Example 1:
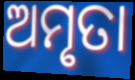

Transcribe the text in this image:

ଅମୃତା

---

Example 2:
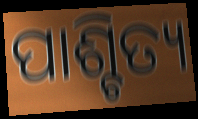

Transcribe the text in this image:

ପାଶ୍ଚିତ୍ୟ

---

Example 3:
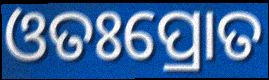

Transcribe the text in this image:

ଓତଃପ୍ରୋତ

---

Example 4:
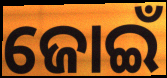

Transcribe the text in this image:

ଜୋଇଁ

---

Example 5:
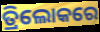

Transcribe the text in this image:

ତ୍ରିଲୋକରେ